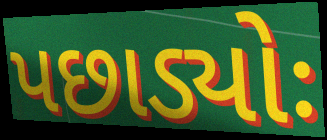
પછાડ્યોઃ